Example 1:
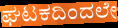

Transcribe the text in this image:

ಘಟಕದಿಂದಲೇ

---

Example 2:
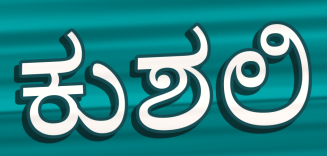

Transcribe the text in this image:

ಕುಶಲಿ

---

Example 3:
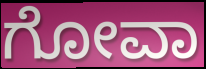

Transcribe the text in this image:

ಗೋವಾ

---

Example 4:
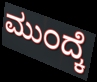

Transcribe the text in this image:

ಮುಂದ್ಕೆ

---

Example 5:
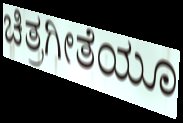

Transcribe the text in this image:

ಚಿತ್ರಗೀತೆಯೂ